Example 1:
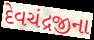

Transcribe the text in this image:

દેવચંદ્રજીના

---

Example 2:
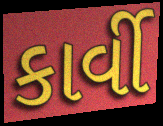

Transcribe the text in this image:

કાર્વી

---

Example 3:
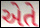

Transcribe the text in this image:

એતે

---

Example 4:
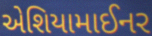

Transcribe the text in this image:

એશિયામાઈનર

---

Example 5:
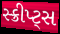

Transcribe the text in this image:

સ્ક્રીપ્ટ્સ